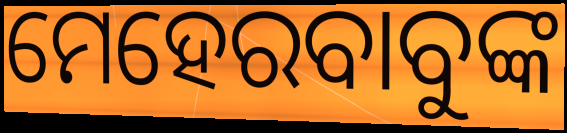
ମେହେରବାବୁଙ୍କ